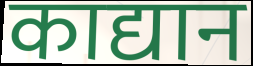
काद्यान